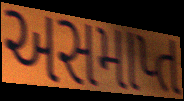
અસમાપ્ત